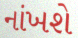
નાંખશે